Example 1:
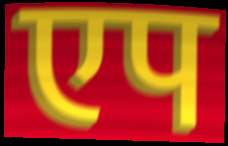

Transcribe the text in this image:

एप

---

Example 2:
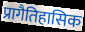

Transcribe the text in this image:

प्रागैतिहासिक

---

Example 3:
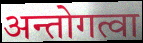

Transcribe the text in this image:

अन्तोगत्वा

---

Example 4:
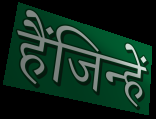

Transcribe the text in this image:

हैंजिन्हें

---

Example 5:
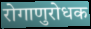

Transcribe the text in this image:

रोगाणुरोधक